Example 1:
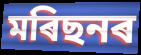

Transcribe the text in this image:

মৰিছনৰ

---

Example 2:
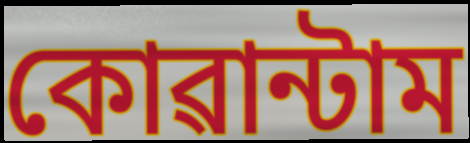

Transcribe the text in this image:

কোৱান্টাম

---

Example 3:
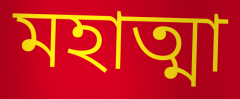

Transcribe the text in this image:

মহাত্মা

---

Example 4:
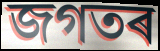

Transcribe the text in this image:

জগতৰ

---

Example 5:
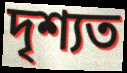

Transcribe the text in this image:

দৃশ্যত